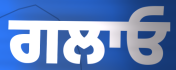
ਗਲਾਓ